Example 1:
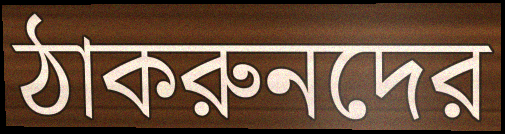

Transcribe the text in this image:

ঠাকরুনদের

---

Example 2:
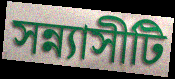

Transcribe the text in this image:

সন্ন্যাসীটি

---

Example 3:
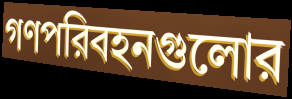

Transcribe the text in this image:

গণপরিবহনগুলোর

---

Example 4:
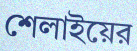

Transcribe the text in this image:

শেলাইয়ের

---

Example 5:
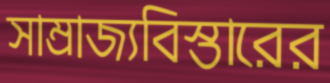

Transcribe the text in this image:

সাম্রাজ্যবিস্তারের